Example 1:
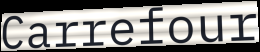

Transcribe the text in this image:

Carrefour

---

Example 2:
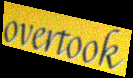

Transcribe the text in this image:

overtook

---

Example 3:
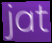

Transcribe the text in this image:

jat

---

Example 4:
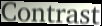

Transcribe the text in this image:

Contrast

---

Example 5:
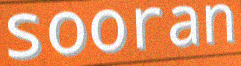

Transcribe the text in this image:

sooran